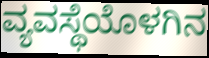
ವ್ಯವಸ್ಥೆಯೊಳಗಿನ